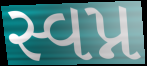
સ્વપ્ન